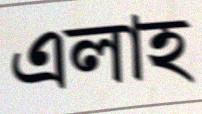
এলাহ